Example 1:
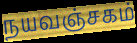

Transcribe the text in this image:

நயவஞ்சகம்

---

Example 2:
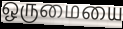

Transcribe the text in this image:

ஒருமையை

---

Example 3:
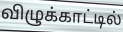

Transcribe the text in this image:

விழுக்காட்டில்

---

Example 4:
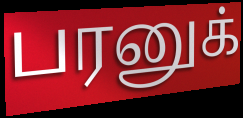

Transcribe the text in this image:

பரனுக்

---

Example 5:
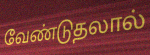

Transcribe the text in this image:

வேண்டுதலால்